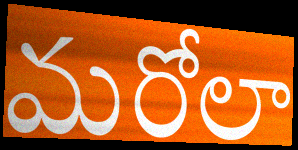
మరోలా